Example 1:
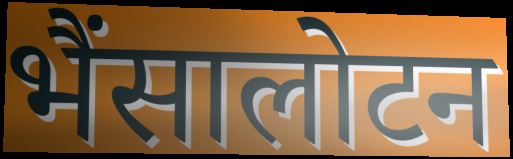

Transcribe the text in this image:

भैंसालोटन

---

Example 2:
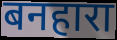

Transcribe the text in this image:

बनहारा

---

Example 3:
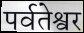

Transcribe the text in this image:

पर्वतेश्वर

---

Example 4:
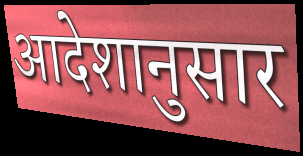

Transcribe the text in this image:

आदेशानुसार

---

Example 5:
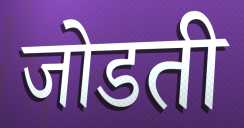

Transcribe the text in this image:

जोडती